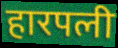
हारपली